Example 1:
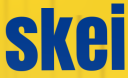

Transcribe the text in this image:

skei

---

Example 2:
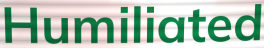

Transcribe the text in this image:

Humiliated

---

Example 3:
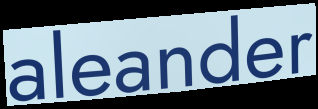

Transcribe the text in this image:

aleander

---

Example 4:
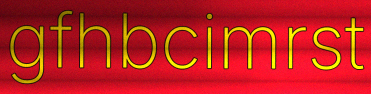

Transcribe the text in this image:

gfhbcimrst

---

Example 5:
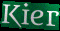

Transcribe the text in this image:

Kier